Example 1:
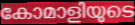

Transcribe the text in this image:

കോമാളിയുടെ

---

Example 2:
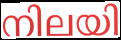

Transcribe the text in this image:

നിലയി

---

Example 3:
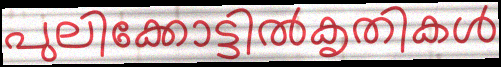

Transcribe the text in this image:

പുലിക്കോട്ടിൽകൃതികൾ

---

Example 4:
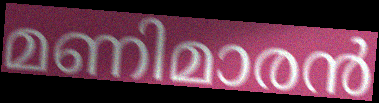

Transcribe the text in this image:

മണിമാരൻ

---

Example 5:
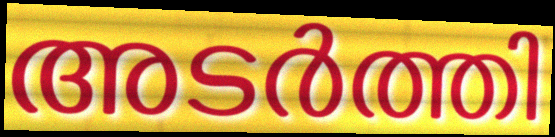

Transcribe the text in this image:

അടർത്തി